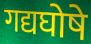
गद्यघोषे